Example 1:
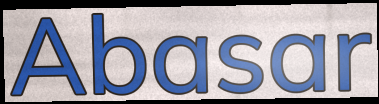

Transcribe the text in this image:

Abasar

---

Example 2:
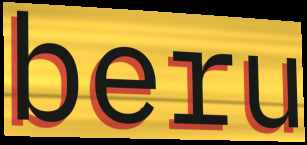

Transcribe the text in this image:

beru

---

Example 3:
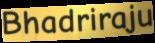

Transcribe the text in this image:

Bhadriraju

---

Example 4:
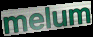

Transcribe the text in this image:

melum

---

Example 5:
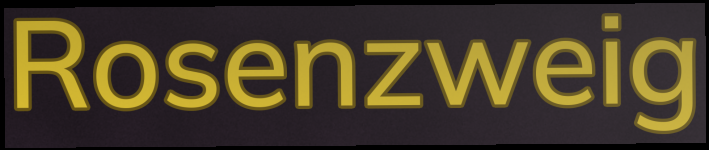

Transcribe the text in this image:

Rosenzweig